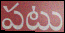
పటు